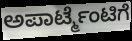
ಅಪಾರ್ಟ್ಮೆಂಟಿಗೆ